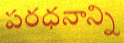
పరధనాన్ని